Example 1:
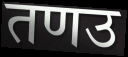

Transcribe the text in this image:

तणउ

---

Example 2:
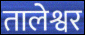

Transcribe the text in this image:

तालेश्वर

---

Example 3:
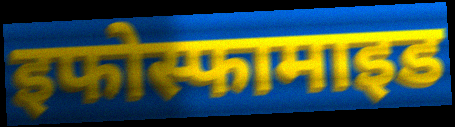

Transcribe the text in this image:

इफोस्फामाइड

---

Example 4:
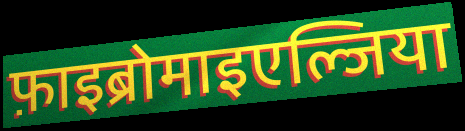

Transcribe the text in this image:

फ़ाइब्रोमाइएल्जिया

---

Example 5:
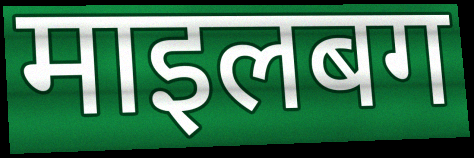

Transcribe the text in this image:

माइलबग